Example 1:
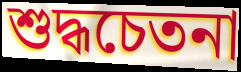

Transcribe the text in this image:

শুদ্ধচেতনা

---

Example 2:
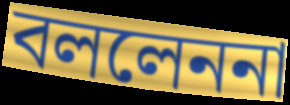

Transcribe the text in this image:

বললেননা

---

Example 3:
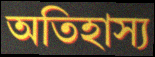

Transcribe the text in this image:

অতিহাস্য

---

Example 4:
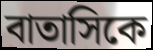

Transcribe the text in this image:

বাতাসিকে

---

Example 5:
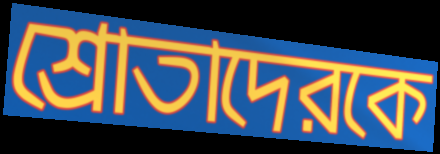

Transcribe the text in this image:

শ্রোতাদেরকে